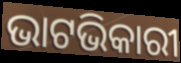
ଭାଟଭିକାରୀ